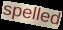
spelled